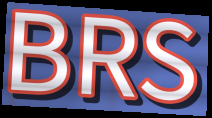
BRS